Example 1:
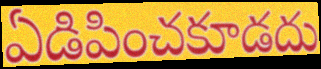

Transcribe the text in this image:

ఏడిపించకూడదు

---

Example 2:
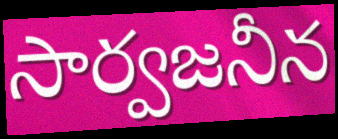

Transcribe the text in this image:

సార్వజనీన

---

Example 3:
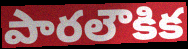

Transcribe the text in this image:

పారలౌకిక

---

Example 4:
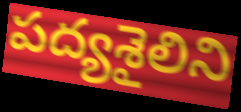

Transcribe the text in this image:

పద్యశైలిని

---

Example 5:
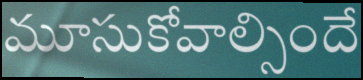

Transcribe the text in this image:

మూసుకోవాల్సిందే